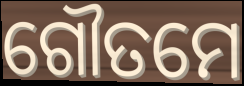
ଗୌତମେ